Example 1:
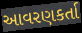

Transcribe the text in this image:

આવરણકર્તા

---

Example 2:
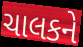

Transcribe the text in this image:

ચાલકને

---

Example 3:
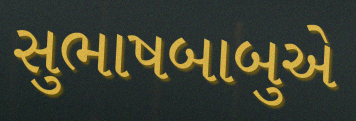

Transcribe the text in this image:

સુભાષબાબુએ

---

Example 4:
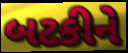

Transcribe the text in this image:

બટકીને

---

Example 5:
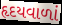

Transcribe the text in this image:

હૃદયવાળાં